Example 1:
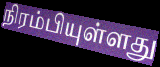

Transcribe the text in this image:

நிரம்பியுள்ளது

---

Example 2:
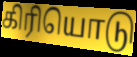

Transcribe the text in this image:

கிரியொடு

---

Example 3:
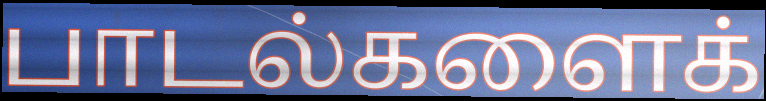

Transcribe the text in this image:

பாடல்களைக்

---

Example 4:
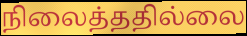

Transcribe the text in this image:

நிலைத்ததில்லை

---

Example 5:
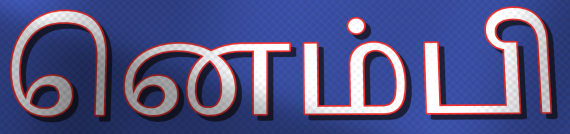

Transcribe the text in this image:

னெம்பி